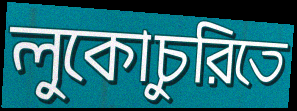
লুকোচুরিতে